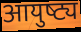
आयुष्ट्य